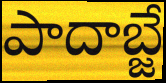
పాదాబ్జే